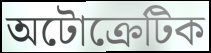
অটোক্রেটিক